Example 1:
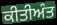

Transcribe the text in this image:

ਕੀਤੀਅੰਤ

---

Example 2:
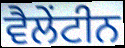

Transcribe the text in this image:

ਵੈਲੇਂਟੀਨ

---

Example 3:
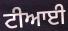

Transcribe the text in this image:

ਟੀਆਈ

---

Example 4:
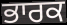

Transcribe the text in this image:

ਭਾਰਕ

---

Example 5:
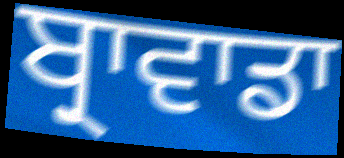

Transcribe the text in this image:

ਬ੍ਰਾਵਾਡਾ